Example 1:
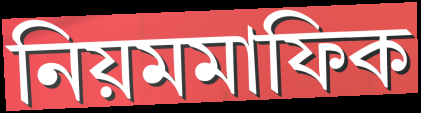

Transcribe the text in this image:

নিয়মমাফিক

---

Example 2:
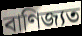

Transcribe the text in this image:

বাণিজ্যত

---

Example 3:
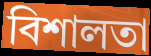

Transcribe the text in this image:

বিশালতা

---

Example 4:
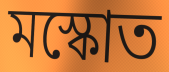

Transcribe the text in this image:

মস্কোত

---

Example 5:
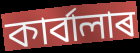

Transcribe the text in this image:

কাৰ্বালাৰ